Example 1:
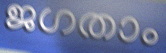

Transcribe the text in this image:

ജഗതാം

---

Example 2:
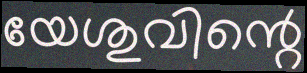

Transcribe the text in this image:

യേശുവിന്റെ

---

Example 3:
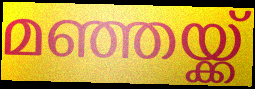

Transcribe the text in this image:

മഞ്ഞയ്ക്ക്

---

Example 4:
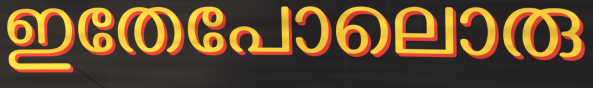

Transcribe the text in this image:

ഇതേപോലൊരു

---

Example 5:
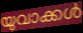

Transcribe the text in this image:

യുവാക്കൾ